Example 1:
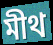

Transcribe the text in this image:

মীথ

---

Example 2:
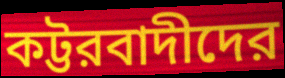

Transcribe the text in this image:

কট্টরবাদীদের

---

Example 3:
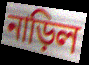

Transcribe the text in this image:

নাড়িল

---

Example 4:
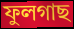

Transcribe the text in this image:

ফুলগাছ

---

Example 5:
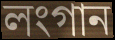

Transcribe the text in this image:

লংগান